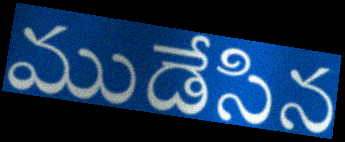
ముడేసిన